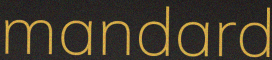
mandard